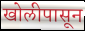
खोलीपासून